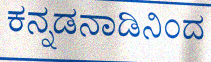
ಕನ್ನಡನಾಡಿನಿಂದ